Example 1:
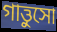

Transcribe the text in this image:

গাত্তুসো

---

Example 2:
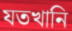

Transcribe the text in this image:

যতখানি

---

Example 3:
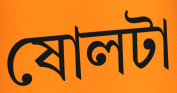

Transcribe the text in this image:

ষোলটা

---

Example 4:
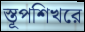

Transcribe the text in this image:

স্তূপশিখরে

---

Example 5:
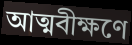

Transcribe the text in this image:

আত্মবীক্ষণে